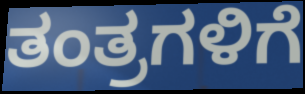
ತಂತ್ರಗಳಿಗೆ